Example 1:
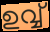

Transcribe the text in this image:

ഉവ്വ്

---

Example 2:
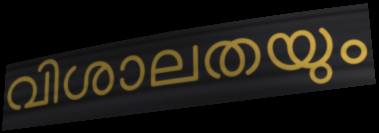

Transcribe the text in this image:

വിശാലതയും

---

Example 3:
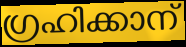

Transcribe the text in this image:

ഗ്രഹിക്കാന്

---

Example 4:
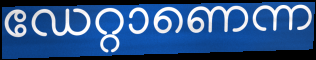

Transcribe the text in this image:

ഡേറ്റാണെന്ന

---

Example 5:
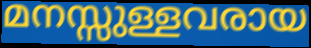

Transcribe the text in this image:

മനസ്സുള്ളവരായ